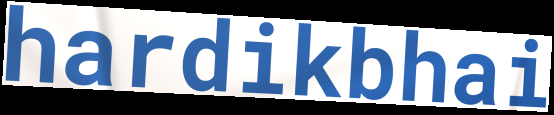
hardikbhai